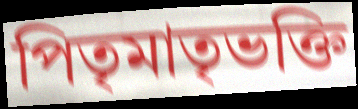
পিতৃমাতৃভক্তি